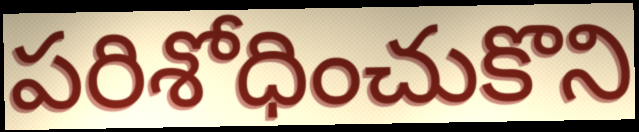
పరిశోధించుకొని